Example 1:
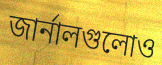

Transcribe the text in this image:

জার্নালগুলোও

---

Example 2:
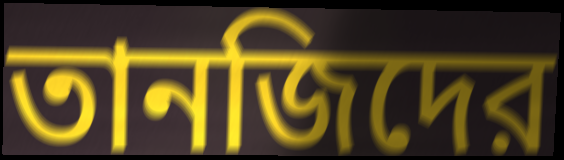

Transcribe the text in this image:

তানজিদের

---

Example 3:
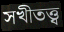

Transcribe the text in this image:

সখীতত্ত্ব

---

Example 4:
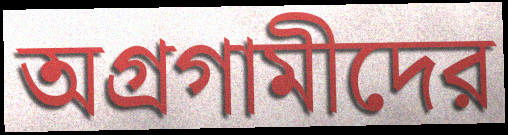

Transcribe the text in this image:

অগ্রগামীদের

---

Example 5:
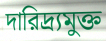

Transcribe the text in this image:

দারিদ্র্যমুক্ত